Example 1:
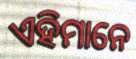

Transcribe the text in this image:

ଏହିମାନେ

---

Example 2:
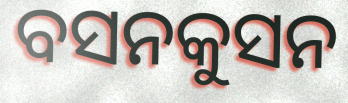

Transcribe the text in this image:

ବସନକୁସନ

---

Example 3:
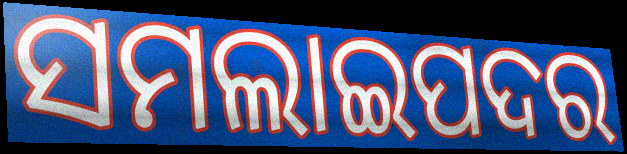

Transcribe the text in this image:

ସମଲାଇପଦର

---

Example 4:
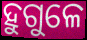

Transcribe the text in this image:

ହୁଗୁଳେ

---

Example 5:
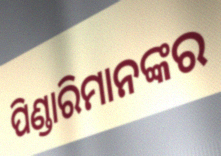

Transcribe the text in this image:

ପିଣ୍ଡାରିମାନଙ୍କର